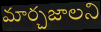
మార్చజాలని